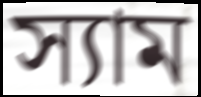
স্যাম